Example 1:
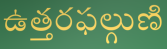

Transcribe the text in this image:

ఉత్తరఫల్గుణి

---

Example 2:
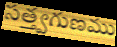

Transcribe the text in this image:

సత్త్వగుణము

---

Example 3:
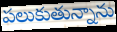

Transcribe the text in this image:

పలుకుతున్నాను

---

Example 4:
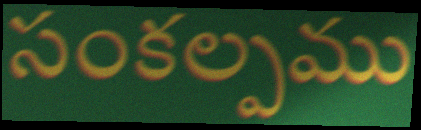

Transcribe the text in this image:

సంకల్పము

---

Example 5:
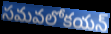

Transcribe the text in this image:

సమవలోకయన్